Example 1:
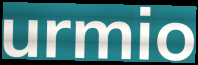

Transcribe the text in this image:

urmio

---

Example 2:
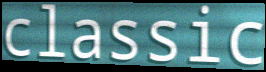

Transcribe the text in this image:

classic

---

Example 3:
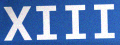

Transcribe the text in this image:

XIII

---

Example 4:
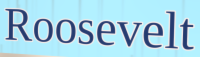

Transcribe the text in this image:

Roosevelt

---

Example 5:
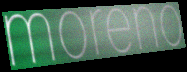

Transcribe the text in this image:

moreno